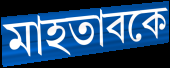
মাহতাবকে